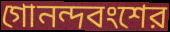
গোনন্দবংশের